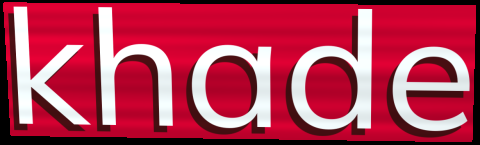
khade